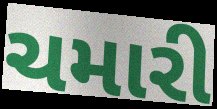
ચમારી